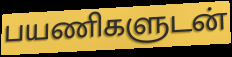
பயணிகளுடன்